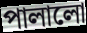
পালালো